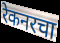
रेकनरचा